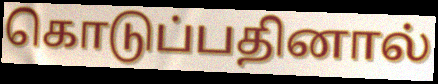
கொடுப்பதினால்